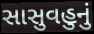
સાસુવહુનું